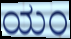
ಯಂ